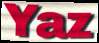
Yaz